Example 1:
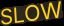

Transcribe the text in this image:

SLOW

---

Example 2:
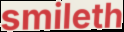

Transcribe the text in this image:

smileth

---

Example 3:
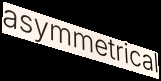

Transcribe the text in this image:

asymmetrical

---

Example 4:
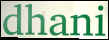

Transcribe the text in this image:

dhani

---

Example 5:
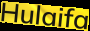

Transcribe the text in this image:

Hulaifa